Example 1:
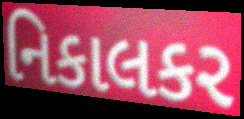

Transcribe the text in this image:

નિકાલકર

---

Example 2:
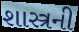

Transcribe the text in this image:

શાસ્ત્રની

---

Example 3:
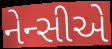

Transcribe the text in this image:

નેન્સીએ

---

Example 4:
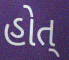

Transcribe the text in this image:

હોત્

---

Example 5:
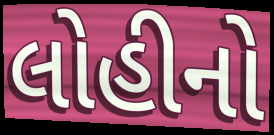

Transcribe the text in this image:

લોહીનો